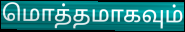
மொத்தமாகவும்